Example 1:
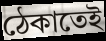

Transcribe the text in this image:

ঠেকাতেই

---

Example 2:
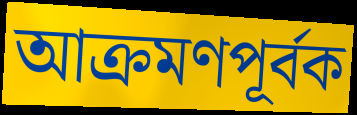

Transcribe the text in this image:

আক্রমণপূর্বক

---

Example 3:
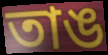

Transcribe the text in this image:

তাঙ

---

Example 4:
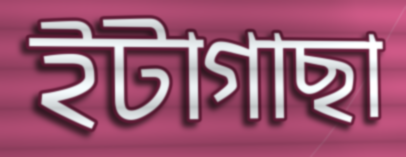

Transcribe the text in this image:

ইটাগাছা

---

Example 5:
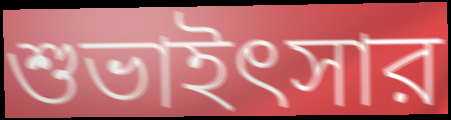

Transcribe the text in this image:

শুভাইৎসার